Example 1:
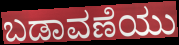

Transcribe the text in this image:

ಬಡಾವಣೆಯು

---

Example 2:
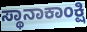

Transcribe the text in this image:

ಸ್ಥಾನಾಕಾಂಕ್ಷಿ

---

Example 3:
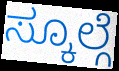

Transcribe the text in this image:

ಸ್ಕೂಲ್ಗೆ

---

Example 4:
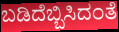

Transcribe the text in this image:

ಬಡಿದೆಬ್ಬಿಸಿದಂತೆ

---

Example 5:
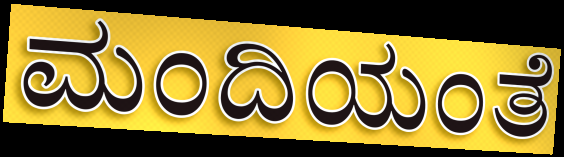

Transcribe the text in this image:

ಮಂದಿಯಂತೆ